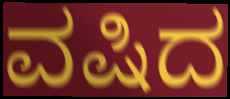
ವಷಿದ